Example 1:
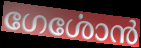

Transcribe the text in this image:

ഗേൎശോൻ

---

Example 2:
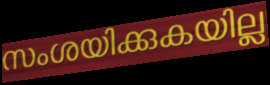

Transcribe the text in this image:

സംശയിക്കുകയില്ല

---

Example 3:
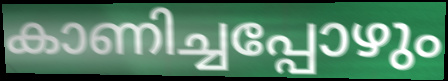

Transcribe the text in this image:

കാണിച്ചപ്പോഴും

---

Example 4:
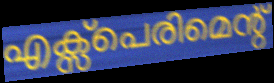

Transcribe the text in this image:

എക്സ്പെരിമെന്റ്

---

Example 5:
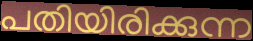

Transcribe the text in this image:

പതിയിരിക്കുന്ന